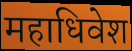
महाधिवेश